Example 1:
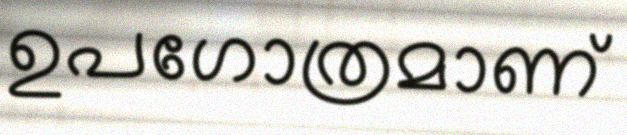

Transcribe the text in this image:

ഉപഗോത്രമാണ്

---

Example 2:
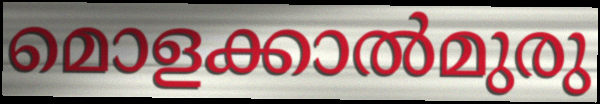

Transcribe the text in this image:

മൊളക്കാൽമുരു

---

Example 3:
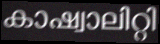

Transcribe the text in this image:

കാഷ്വാലിറ്റി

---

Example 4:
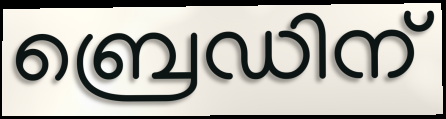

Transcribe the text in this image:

ബ്രെഡിന്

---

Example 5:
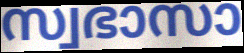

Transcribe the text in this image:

സ്വഭാസാ